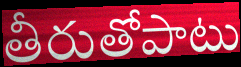
తీరుతోపాటు